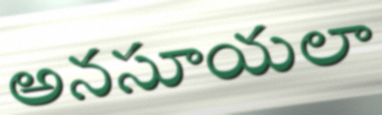
అనసూయలా